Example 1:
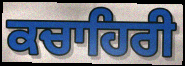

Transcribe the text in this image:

ਕਚਾਹਿਰੀ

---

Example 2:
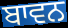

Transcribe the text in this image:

ਬਾਵਨ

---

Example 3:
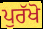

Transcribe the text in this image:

ਪੁਰੱਖੋ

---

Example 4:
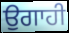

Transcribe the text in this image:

ਉਗਾਹੀ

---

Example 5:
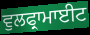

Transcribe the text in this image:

ਵੁਲਫ੍ਰਾਮਾਈਟ